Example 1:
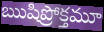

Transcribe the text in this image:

ఋషిప్రోక్తమూ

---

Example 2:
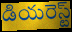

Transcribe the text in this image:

డియరెస్ట్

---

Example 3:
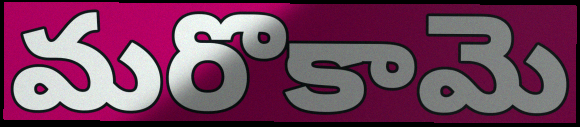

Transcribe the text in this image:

మరొకామె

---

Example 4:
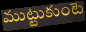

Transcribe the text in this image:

ముట్టుకుంటె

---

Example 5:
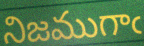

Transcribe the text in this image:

నిజముగాఁ